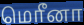
மெரீனா